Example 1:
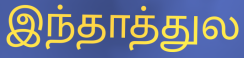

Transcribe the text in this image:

இந்தாத்துல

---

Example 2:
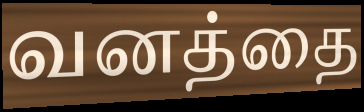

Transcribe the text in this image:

வனத்தை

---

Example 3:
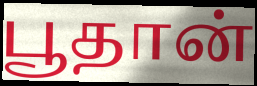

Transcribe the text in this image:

பூதான்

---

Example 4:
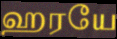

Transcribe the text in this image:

ஹரயே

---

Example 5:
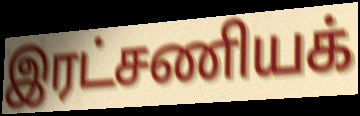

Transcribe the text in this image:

இரட்சணியக்